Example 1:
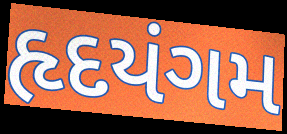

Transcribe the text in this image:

હૃદયંગમ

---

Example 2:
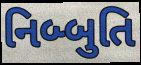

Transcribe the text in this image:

નિબ્બુતિ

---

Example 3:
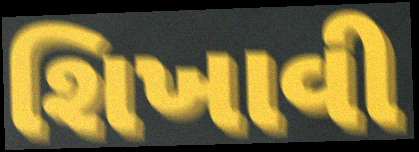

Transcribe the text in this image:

શિખાવી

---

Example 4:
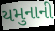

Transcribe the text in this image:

યમુનાની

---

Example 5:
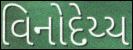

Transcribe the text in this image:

વિનોદેય્ય